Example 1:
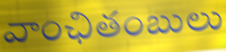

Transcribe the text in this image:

వాంఛితంబులు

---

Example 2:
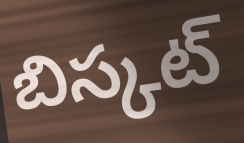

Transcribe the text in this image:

బిస్కట్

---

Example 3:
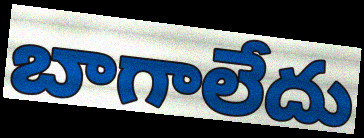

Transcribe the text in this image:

బాగాలేదు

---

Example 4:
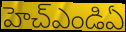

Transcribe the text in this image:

హెచ్ఎండిఏ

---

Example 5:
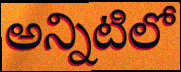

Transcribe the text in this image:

అన్నిటిలో